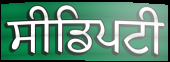
ਸੀਡਿਪਟੀ